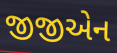
જીજીએન